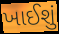
ખાઈશું